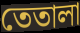
তেতালা